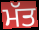
ਮੱਤ